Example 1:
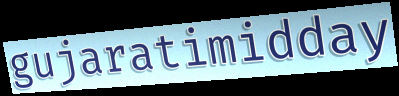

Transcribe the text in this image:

gujaratimidday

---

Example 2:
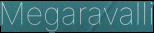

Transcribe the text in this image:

Megaravalli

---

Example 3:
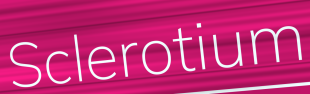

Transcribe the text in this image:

Sclerotium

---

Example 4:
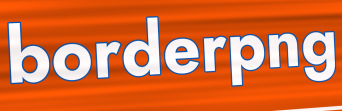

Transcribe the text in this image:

borderpng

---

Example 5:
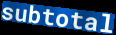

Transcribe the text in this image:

subtotal